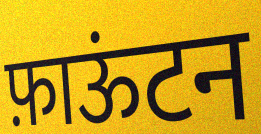
फ़ाऊंटन